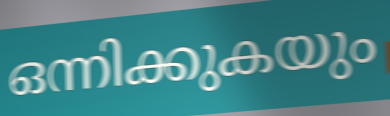
ഒന്നിക്കുകയും